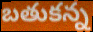
బతుకన్న